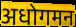
अधोगमन